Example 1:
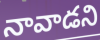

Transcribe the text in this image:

నావాడని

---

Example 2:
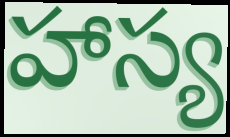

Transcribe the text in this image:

హాస్య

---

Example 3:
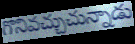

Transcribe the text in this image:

గొనివచ్చుచున్నాడు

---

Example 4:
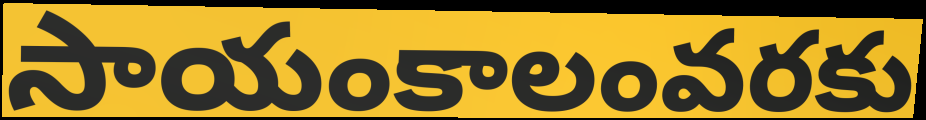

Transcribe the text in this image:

సాయంకాలంవరకు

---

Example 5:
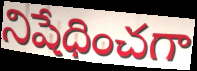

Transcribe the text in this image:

నిషేధించగా